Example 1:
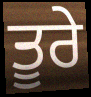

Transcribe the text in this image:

ਤੂਰੇ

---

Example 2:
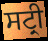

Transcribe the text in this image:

ਸਟ੍ਰੀ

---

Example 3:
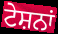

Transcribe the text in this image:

ਟੇਸ਼ਨਾਂ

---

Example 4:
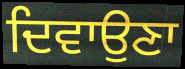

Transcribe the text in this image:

ਦਿਵਾਉਣਾ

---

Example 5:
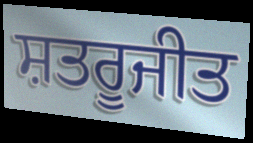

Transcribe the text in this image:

ਸ਼ਤਰੂਜੀਤ